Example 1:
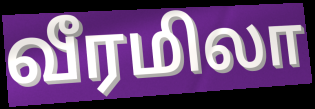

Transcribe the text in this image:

வீரமிலா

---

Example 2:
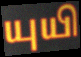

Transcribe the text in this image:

யுயி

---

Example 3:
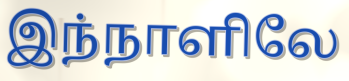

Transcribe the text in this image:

இந்நாளிலே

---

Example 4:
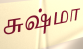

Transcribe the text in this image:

சுஷ்மா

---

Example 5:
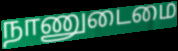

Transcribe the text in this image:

நாணுடைமை